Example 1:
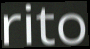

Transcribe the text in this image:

rito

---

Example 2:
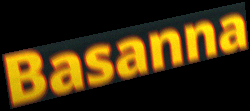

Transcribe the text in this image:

Basanna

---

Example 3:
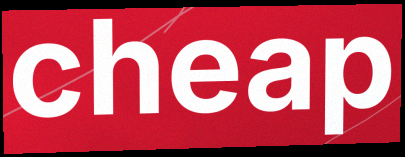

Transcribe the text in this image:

cheap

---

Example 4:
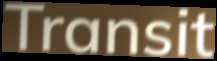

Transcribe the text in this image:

Transit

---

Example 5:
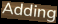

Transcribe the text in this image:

Adding